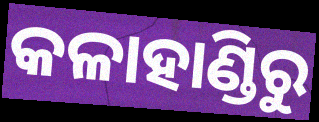
କଳାହାଣ୍ଡିରୁ